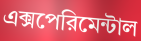
এক্সপেরিমেন্টাল